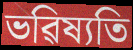
ভৱিষ্যতি